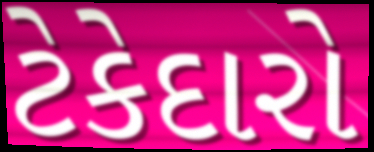
ટેકેદારો